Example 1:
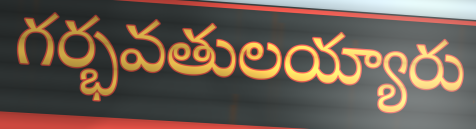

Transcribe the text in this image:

గర్భవతులయ్యారు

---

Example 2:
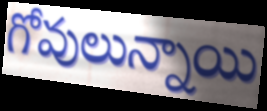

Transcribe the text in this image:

గోవులున్నాయి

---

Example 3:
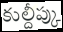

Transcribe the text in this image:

కుల్దీప్కు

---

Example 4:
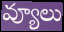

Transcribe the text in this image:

వ్యూలు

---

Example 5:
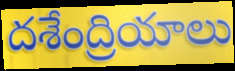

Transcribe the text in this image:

దశేంద్రియాలు